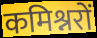
कमिश्नरों